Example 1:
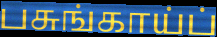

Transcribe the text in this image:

பசுங்காய்ப்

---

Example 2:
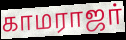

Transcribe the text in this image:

காமராஜர்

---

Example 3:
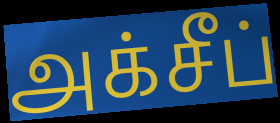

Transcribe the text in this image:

அக்சீப்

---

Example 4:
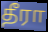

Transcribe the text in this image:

தீரா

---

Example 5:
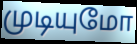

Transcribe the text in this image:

முடியுமோ